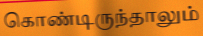
கொண்டிருந்தாலும்